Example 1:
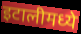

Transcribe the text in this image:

इटालीमध्ये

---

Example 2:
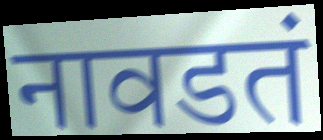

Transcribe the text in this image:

नावडतं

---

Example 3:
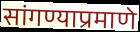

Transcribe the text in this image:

सांगण्याप्रमाणे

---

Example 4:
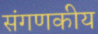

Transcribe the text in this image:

संगणकीय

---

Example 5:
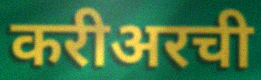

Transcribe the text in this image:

करीअरची